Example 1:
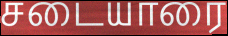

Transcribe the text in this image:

சடையாரை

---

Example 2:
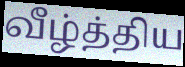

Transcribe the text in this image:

வீழ்த்திய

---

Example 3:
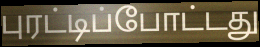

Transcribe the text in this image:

புரட்டிப்போட்டது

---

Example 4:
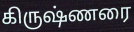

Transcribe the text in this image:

கிருஷ்ணரை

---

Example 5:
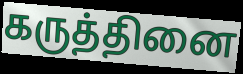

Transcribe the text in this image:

கருத்தினை